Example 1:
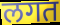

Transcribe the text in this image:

लगत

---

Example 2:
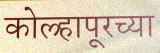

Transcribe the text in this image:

कोल्हापूरच्या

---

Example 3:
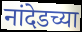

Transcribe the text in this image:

नांदेडच्या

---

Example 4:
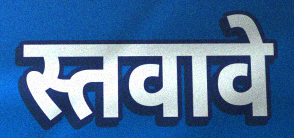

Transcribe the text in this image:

स्तवावे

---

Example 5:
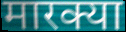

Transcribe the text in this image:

मारक्या